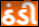
ઠંડી